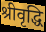
श्रीवृद्धि